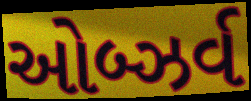
ઓબ્ઝર્વ